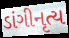
ડાંગીનૃત્ય